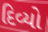
દિવ્યો